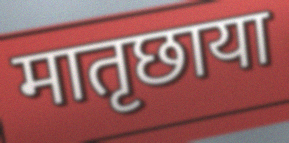
मातृछाया